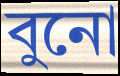
বুনো